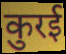
कुरई